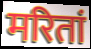
मरितां